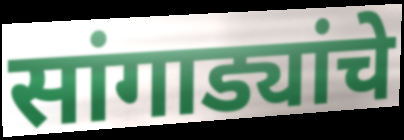
सांगाड्यांचे